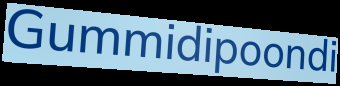
Gummidipoondi